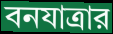
বনযাত্রার